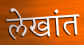
लेखांत